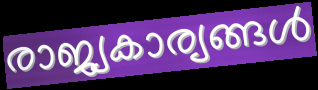
രാജ്യകാര്യങ്ങൾ